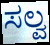
ಸಲ್ವ